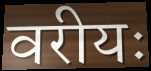
वरीयः